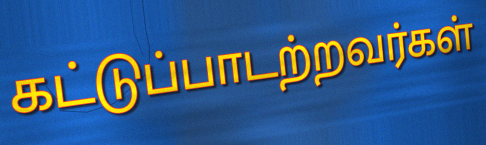
கட்டுப்பாடற்றவர்கள்